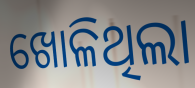
ଖୋଳିଥିଲା